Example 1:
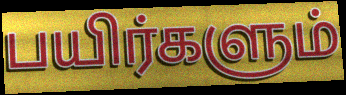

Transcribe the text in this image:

பயிர்களும்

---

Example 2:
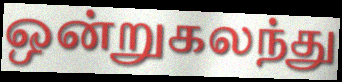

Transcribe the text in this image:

ஒன்றுகலந்து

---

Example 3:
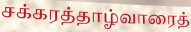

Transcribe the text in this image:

சக்கரத்தாழ்வாரைத்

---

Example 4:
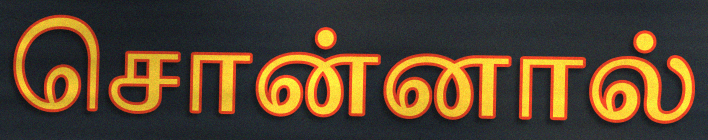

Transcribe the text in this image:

சொன்னால்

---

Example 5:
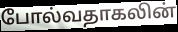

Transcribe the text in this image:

போல்வதாகலின்